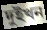
দুইখন